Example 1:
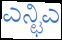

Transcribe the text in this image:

ಎನ್ಟಿಎ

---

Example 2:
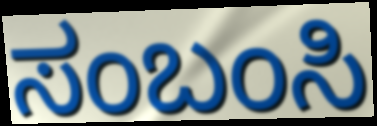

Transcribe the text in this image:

ಸಂಬಂಸಿ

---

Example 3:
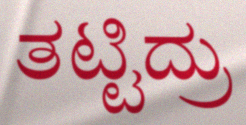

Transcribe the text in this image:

ತಟ್ಟಿದ್ರು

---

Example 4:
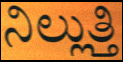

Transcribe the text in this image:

ನಿಲ್ಲುತ್ತಿ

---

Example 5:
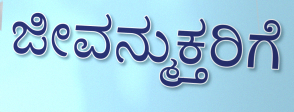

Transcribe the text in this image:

ಜೀವನ್ಮುಕ್ತರಿಗೆ